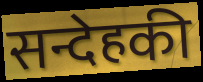
सन्देहकी